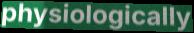
physiologically